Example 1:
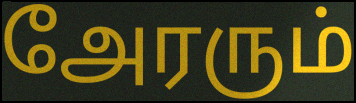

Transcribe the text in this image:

அேரரும்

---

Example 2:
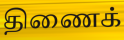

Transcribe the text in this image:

திணைக்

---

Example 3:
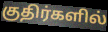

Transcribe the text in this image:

குதிர்களில்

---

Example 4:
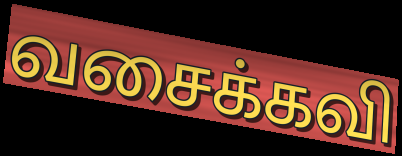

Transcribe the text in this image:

வசைக்கவி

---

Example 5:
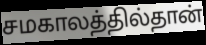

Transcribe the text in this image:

சமகாலத்தில்தான்